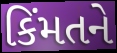
કિંમતને